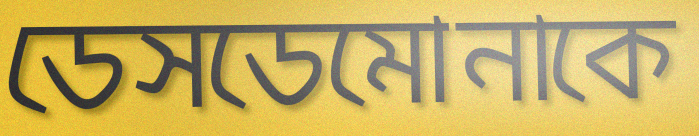
ডেসডেমোনাকে